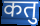
कतु